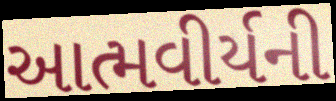
આત્મવીર્યની